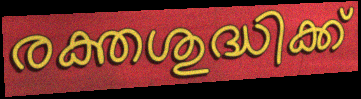
രക്തശുദ്ധിക്ക്